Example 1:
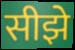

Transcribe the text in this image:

सीझे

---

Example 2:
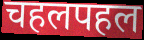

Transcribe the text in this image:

चहलपहल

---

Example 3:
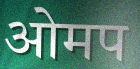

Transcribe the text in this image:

ओमप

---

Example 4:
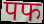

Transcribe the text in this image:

पफ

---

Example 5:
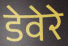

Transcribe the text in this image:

डेवेरे